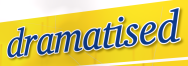
dramatised